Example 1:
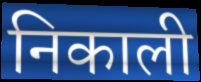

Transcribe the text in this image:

निकाली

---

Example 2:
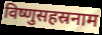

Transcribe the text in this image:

विष्णुसहस्रनाम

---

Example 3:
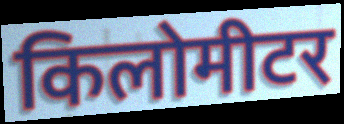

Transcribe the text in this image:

किलोमीटर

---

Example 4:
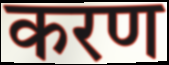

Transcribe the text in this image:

करण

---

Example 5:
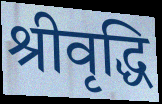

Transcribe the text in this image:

श्रीवृद्धि